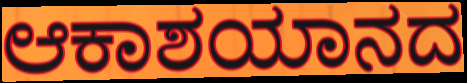
ಆಕಾಶಯಾನದ